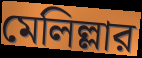
মেলিল্লার